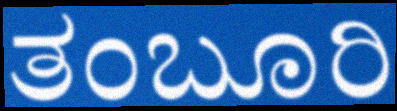
ತಂಬೂರಿ